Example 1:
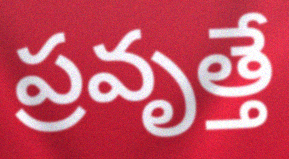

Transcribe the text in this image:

ప్రవృత్తే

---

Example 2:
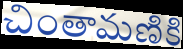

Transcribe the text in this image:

చింతామణికి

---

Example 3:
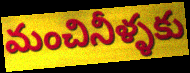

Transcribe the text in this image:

మంచినీళ్ళకు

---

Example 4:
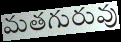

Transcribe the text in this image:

మతగురువు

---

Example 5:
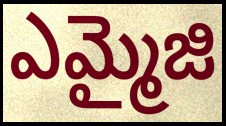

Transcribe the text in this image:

ఎమ్మైజి